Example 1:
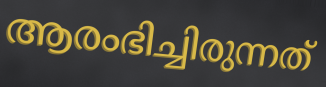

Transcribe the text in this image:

ആരംഭിച്ചിരുന്നത്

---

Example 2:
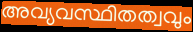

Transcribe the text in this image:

അവ്യവസ്ഥിതത്വവും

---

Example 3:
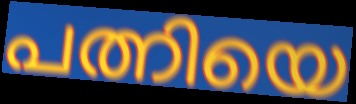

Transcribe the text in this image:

പത്നിയെ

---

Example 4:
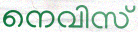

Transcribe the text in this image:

നെവിസ്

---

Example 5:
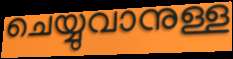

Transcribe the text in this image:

ചെയ്യുവാനുള്ള